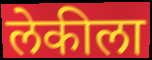
लेकीला